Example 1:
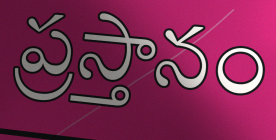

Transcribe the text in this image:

ప్రస్తానం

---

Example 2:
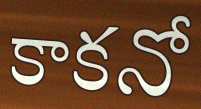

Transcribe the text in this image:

కాకనో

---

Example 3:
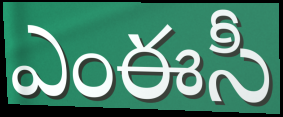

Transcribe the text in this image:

ఎంఈసీ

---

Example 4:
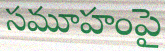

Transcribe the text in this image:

సమూహంపై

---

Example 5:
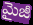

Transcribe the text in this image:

మైజీ